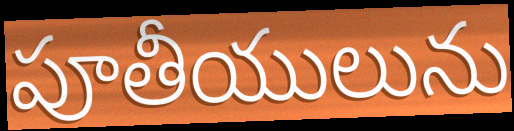
పూతీయులును